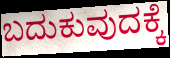
ಬದುಕುವುದಕ್ಕೆ